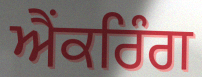
ਐਂਕਰਿੰਗ